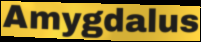
Amygdalus